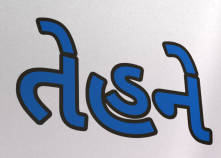
તેહને